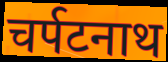
चर्पटनाथ